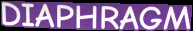
DIAPHRAGM